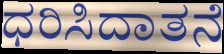
ಧರಿಸಿದಾತನೆ